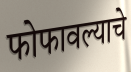
फोफावल्याचे